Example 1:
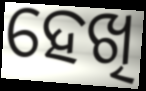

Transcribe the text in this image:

ହେଖି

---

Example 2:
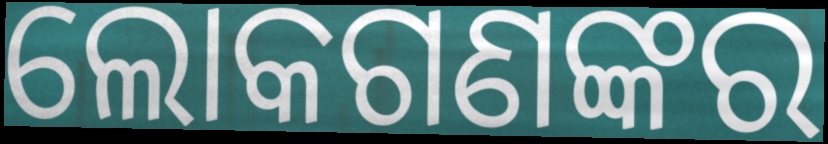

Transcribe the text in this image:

ଲୋକଗଣଙ୍କର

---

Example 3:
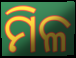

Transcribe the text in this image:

ମିଳ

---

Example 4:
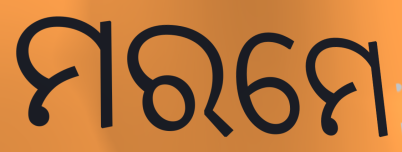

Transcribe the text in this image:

ମରମେ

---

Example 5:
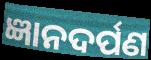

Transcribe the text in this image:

ଜ୍ଞାନଦର୍ପଣ